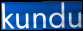
kundu